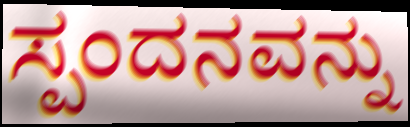
ಸ್ಪಂದನವನ್ನು